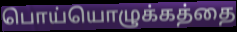
பொய்யொழுக்கத்தை